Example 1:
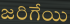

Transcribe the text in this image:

జరిగేయి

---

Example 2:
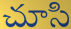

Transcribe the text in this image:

చూసి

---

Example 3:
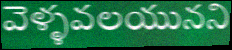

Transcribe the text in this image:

వెళ్ళవలయునని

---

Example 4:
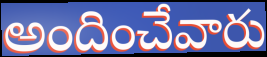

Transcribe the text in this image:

అందించేవారు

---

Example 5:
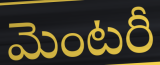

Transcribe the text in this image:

మెంటరీ